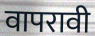
वापरावी